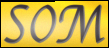
SOM